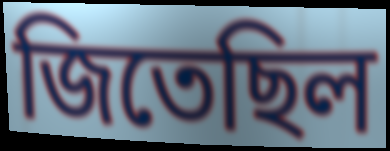
জিতেছিল